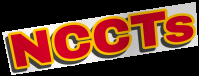
NCCTs